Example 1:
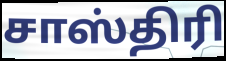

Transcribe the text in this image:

சாஸ்திரி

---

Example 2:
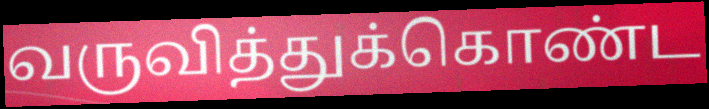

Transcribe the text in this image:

வருவித்துக்கொண்ட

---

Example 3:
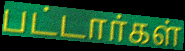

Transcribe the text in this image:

பட்டார்கள்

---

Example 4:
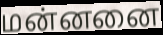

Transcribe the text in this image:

மன்னனை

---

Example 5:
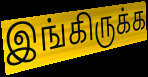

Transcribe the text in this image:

இங்கிருக்க